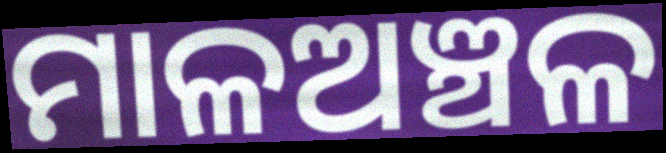
ମାଳଅଞ୍ଚଳ